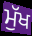
ਮੁੱਖ